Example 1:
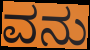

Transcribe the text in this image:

ವನು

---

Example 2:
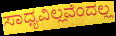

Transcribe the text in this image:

ಸಾಧ್ಯವಿಲ್ಲವೆಂದಲ್ಲ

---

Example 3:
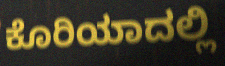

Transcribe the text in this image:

ಕೊರಿಯಾದಲ್ಲಿ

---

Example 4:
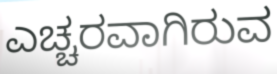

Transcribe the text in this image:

ಎಚ್ಚರವಾಗಿರುವ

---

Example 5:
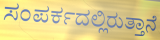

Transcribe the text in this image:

ಸಂಪರ್ಕದಲ್ಲಿರುತ್ತಾನೆ